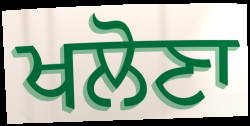
ਖਲੋਣਾ